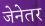
जेनेतर